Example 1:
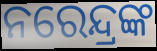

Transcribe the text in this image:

ନରେନ୍ଦ୍ରଙ୍କ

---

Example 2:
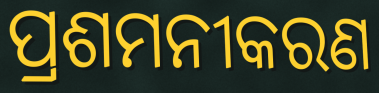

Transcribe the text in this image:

ପ୍ରଶମନୀକରଣ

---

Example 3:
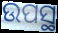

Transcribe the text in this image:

ଉପସ୍ଥ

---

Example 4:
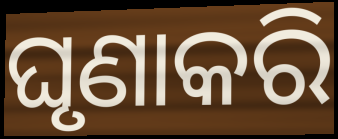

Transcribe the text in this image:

ଘୃଣାକରି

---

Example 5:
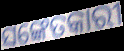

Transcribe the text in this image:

ସଙ୍କେତକାରୀ